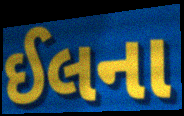
ઈલના